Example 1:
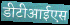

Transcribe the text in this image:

डीटीआईएस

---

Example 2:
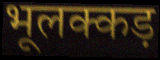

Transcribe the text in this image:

भूलक्कड़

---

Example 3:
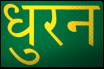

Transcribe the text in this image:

धुरन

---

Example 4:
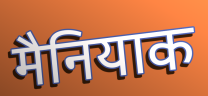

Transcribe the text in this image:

मैनियाक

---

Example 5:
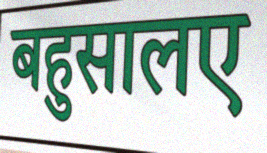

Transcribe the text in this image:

बहुसालए